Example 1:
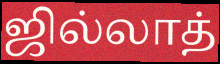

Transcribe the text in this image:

ஜில்லாத்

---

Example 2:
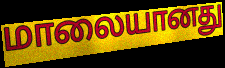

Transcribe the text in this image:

மாலையானது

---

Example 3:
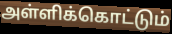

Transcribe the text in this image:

அள்ளிக்கொட்டும்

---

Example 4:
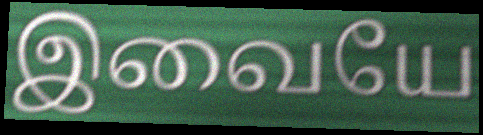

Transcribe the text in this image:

இவையே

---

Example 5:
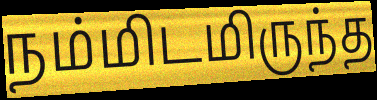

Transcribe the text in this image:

நம்மிடமிருந்த